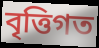
বৃত্তিগত